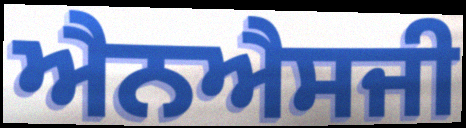
ਐਨਐਸਜੀ